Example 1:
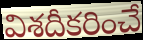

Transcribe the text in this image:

విశదీకరించే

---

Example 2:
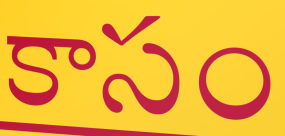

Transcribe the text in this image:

కాసం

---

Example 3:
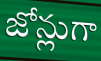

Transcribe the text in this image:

జోన్లుగా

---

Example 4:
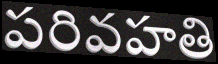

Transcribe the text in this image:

పరివహతి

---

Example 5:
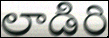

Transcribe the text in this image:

లాడిరి